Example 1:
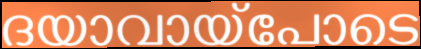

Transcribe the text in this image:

ദയാവായ്പോടെ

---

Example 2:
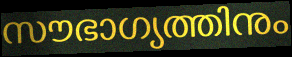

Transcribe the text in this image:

സൗഭാഗ്യത്തിനും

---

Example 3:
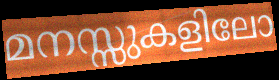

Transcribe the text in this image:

മനസ്സുകളിലോ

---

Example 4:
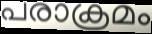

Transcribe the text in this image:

പരാക്രമം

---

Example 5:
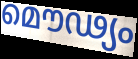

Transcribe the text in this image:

മൌഢ്യം